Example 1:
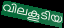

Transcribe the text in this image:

വിലകൂടിയ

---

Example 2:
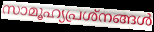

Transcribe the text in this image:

സാമൂഹ്യപ്രശ്നങ്ങൾ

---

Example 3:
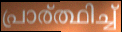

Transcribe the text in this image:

പ്രാര്ത്ഥിച്ച്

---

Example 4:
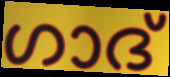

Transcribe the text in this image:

ഗാദ്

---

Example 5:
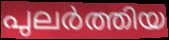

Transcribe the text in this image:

പുലർത്തിയ